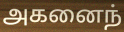
அகனைந்